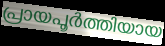
പ്രായപൂർത്തിയായ